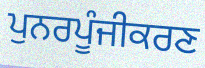
ਪੁਨਰਪੂੰਜੀਕਰਣ